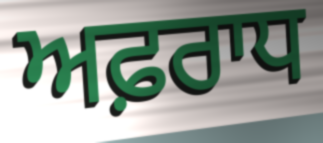
ਅਫ਼ਰਾਧ